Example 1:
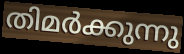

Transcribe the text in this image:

തിമർക്കുന്നു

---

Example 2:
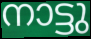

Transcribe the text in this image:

നാട്ടു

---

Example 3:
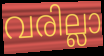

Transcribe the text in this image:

വരില്ലാ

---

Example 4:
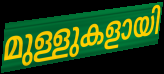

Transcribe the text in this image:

മുള്ളുകളായി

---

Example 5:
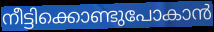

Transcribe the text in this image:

നീട്ടിക്കൊണ്ടുപോകാൻ